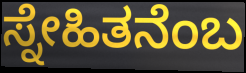
ಸ್ನೇಹಿತನೆಂಬ